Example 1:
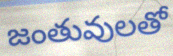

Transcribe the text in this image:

జంతువులతో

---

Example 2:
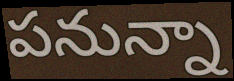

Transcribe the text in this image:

పనున్నా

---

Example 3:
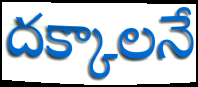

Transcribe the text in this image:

దక్కాలనే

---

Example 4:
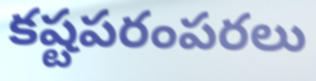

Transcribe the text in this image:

కష్టపరంపరలు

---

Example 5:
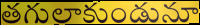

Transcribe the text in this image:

తగులాకుండునూ